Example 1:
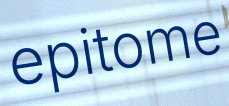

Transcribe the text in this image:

epitome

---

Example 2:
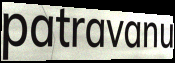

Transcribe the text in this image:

patravanu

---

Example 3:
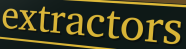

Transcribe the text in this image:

extractors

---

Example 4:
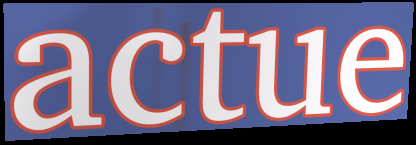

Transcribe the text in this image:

actue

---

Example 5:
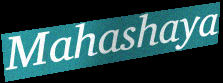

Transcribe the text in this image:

Mahashaya